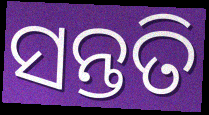
ସନ୍ତତି